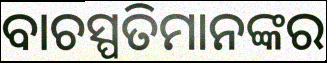
ବାଚସ୍ପତିମାନଙ୍କର